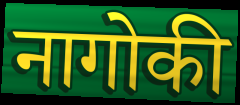
नागोकी